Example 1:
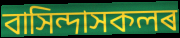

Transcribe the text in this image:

বাসিন্দাসকলৰ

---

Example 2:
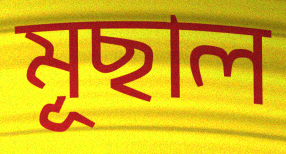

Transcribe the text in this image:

মূছাল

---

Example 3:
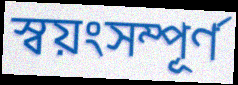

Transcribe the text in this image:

স্বয়ংসম্পূৰ্ণ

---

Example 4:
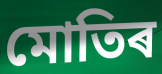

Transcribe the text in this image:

মোতিৰ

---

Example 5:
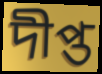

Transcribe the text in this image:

দীপ্ত